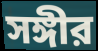
সঙ্গীর